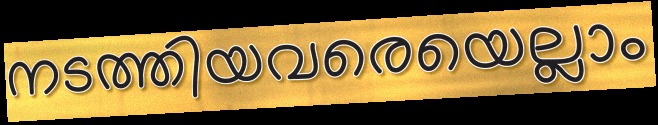
നടത്തിയവരെയെല്ലാം